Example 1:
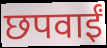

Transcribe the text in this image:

छपवाईं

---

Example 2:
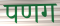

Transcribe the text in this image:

पणग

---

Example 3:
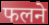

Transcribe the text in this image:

फलने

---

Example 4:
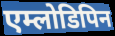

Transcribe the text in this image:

एम्लोडिपिन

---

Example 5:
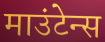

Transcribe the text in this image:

माउंटेन्स